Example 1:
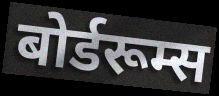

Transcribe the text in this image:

बोर्डरूम्स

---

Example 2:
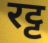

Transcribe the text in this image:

रट्ट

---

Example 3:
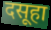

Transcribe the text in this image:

दसूहा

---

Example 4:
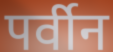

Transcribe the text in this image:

पर्वीन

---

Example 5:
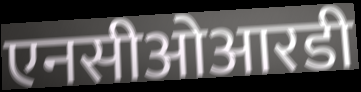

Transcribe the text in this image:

एनसीओआरडी